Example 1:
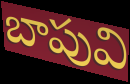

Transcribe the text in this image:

బాపువి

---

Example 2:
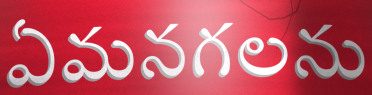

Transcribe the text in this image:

ఏమనగలను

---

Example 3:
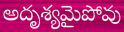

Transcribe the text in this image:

అదృశ్యమైపోవు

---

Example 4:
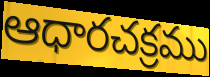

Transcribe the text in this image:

ఆధారచక్రము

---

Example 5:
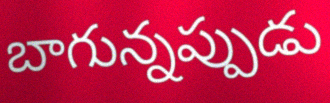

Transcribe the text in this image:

బాగున్నప్పుడు